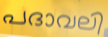
പദാവലി